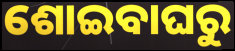
ଶୋଇବାଘରୁ